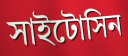
সাইটোসিন